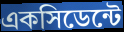
একসিডেন্টে